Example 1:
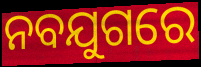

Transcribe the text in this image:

ନବଯୁଗରେ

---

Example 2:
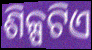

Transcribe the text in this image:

ଶିଳ୍ପଟିଏ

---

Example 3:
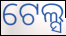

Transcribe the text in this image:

ଟେଲ୍ସ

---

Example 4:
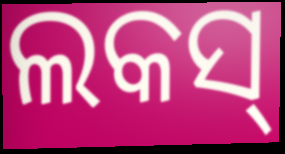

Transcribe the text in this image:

ଲକସ୍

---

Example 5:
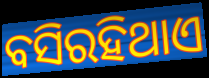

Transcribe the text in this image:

ବସିରହିଥାଏ